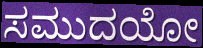
ಸಮುದಯೋ